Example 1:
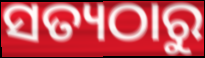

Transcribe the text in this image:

ସତ୍ୟଠାରୁ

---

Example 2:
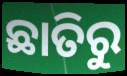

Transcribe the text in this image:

ଛାତିରୁ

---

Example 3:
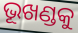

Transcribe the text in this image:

ଭୂଖଣ୍ଡକୁ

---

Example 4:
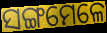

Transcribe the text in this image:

ସଙ୍ଗମେଳେ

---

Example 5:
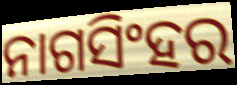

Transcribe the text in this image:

ନାଗସିଂହର